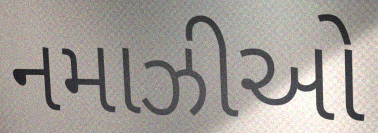
નમાઝીઓ